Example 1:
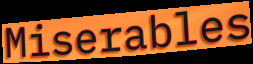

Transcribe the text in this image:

Miserables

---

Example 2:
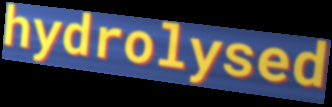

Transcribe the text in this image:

hydrolysed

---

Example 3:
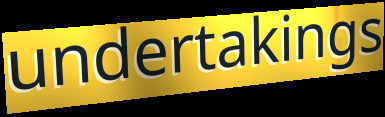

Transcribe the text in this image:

undertakings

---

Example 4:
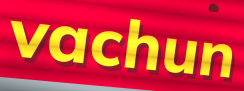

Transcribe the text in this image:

vachun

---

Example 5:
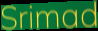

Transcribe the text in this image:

Srimad